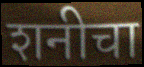
शनीचा